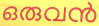
ഒരുവൻ